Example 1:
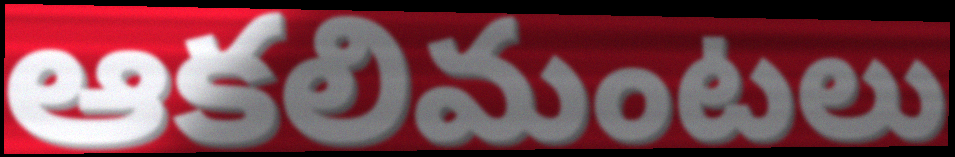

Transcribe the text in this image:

ఆకలిమంటలు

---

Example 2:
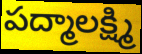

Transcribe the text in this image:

పద్మాలక్ష్మి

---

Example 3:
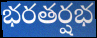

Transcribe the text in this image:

భరతర్షభ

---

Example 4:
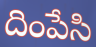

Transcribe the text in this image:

దింపేసి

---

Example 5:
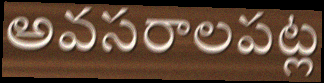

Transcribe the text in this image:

అవసరాలపట్ల